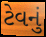
ટેવનું